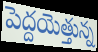
పెద్దయెత్తున్న